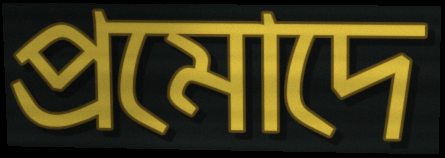
প্ৰমোদে